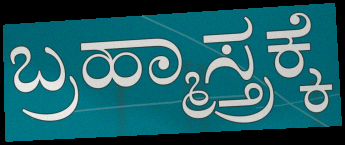
ಬ್ರಹ್ಮಾಸ್ತ್ರಕ್ಕೆ